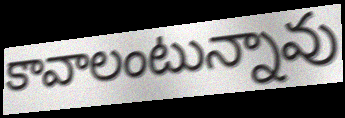
కావాలంటున్నావు